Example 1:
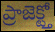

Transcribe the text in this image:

ప్రాజెక్ట్తో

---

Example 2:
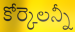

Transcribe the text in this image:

కోర్కెలన్నీ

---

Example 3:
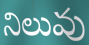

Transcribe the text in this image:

నిలువు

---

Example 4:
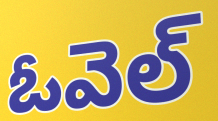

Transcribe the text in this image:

ఓవెల్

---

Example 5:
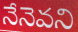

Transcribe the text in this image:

నేనెవని